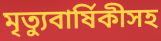
মৃত্যুবার্ষিকীসহ